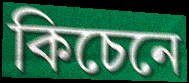
কিচেনে